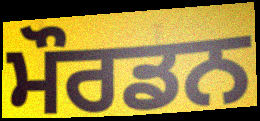
ਮੌਰਡਨ